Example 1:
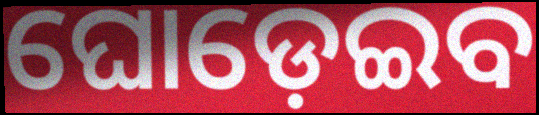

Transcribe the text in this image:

ଘୋଡ଼େଇବ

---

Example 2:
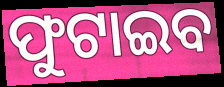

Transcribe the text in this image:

ଫୁଟାଇବ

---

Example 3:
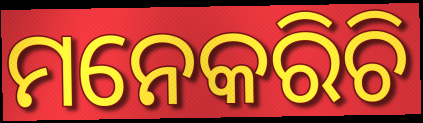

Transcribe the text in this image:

ମନେକରିଚି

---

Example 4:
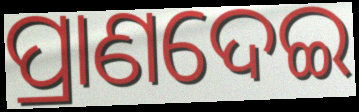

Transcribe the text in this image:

ପ୍ରାଣଦେଇ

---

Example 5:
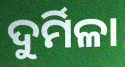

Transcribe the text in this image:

ଦୁର୍ମିଳା